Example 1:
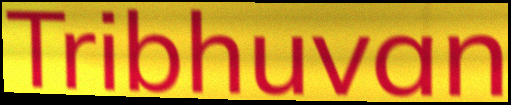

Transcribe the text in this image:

Tribhuvan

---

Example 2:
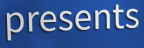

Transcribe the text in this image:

presents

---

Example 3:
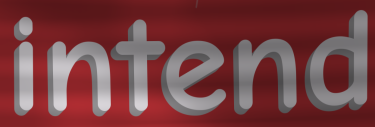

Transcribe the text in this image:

intend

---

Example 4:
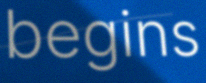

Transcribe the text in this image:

begins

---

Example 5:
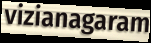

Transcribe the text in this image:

vizianagaram